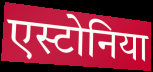
एस्टोनिया